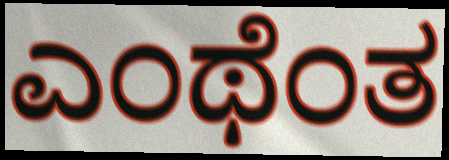
ಎಂಥೆಂತ